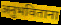
अनुभविताना